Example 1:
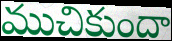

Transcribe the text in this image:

ముచికుందా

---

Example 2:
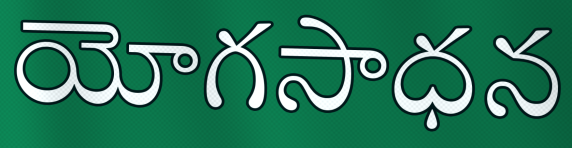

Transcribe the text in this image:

యోగసాధన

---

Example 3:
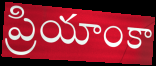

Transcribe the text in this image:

ప్రియాంకా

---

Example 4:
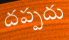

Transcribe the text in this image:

దప్పదు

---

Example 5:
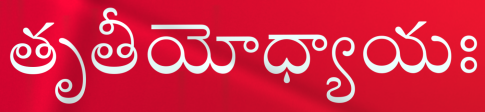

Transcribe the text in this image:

తృతీయోధ్యాయః